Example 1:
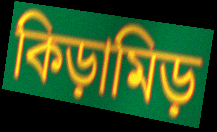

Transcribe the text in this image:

কিড়ামিড়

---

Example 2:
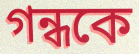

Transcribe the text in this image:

গন্ধকে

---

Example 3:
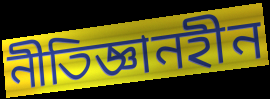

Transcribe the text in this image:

নীতিজ্ঞানহীন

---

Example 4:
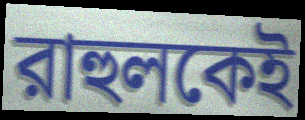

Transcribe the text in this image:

রাহুলকেই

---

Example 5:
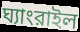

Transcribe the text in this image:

ঘ্যাংরাইল